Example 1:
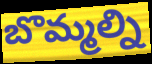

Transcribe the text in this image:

బొమ్మల్ని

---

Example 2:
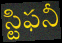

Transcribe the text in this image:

స్టిఫనీ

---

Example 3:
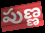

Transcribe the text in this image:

పుణ్ణ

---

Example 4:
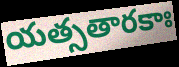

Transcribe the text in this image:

యత్సతారకాః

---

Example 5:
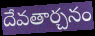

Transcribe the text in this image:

దేవతార్చనం